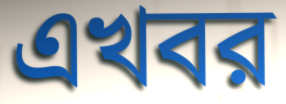
এখবর